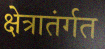
क्षेत्रातंर्गत